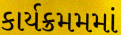
કાર્યક્રમમમાં